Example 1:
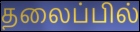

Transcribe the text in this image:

தலைப்பில்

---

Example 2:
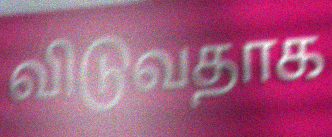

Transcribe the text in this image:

விடுவதாக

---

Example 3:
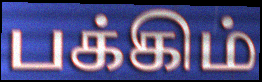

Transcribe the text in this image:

பக்கிம்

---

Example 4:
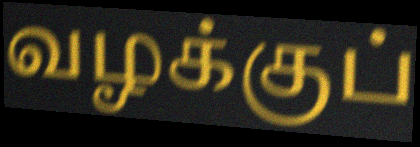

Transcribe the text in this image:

வழக்குப்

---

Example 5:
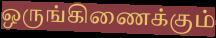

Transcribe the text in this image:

ஒருங்கிணைக்கும்